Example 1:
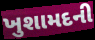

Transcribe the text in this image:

ખુશામદની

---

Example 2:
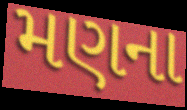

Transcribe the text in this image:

મણના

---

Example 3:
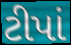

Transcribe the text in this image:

ટીપાં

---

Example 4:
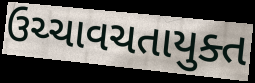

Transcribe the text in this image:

ઉચ્ચાવચતાયુક્ત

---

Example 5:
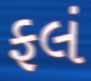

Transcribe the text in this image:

ફલં